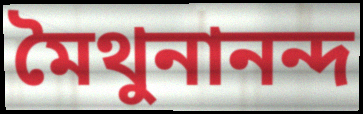
মৈথুনানন্দ